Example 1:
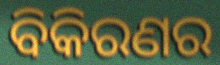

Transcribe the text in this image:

ବିକିରଣର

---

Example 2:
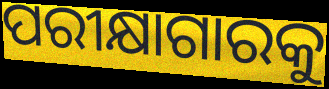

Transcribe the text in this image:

ପରୀକ୍ଷାଗାରକୁ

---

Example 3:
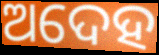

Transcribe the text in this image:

ଅଦେହ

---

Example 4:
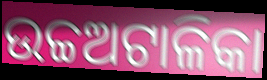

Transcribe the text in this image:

ଉଚ୍ଚଅଟାଳିକା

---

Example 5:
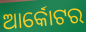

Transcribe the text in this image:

ଆର୍କୋଟର